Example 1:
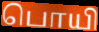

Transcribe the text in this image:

பொயி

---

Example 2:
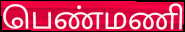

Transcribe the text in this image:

பெண்மணி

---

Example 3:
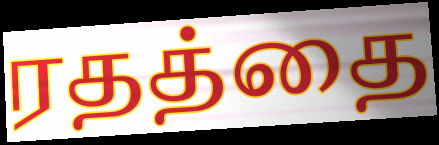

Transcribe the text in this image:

ரதத்தை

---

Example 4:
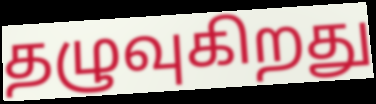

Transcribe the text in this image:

தழுவுகிறது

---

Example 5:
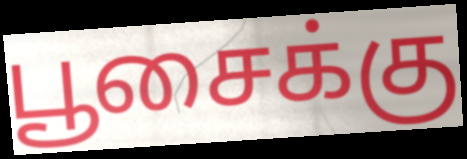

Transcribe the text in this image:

பூசைக்கு